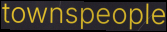
townspeople